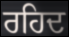
ਰਹਿਦ